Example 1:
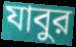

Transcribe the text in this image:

যাবুর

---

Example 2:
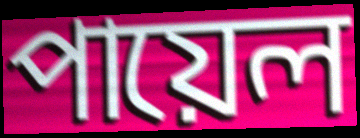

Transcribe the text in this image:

পায়েল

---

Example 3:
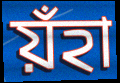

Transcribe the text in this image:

য়ঁহা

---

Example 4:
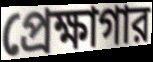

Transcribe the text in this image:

প্রেক্ষাগার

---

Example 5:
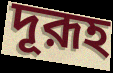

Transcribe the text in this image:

দূরূহ